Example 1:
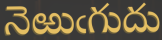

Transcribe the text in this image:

నెఱుఁగుదు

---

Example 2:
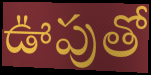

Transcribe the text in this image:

ఊపుతో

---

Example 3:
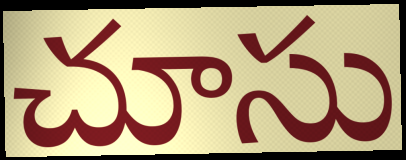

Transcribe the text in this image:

చూసు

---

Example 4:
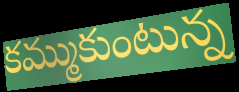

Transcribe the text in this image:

కమ్ముకుంటున్న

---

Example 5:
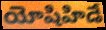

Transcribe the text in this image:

యోషిహిడే